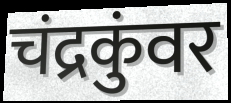
चंद्रकुंवर